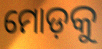
ମୋଡ଼କୁ